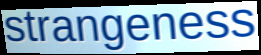
strangeness